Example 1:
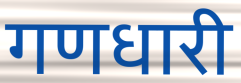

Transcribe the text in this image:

गणधारी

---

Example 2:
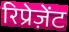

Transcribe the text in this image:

रिप्रेज़ेंट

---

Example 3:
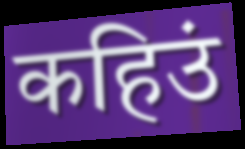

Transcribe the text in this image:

कहिउं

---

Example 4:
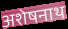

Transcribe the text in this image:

अशेषनाथ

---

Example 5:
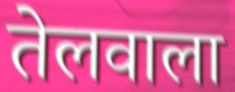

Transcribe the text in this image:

तेलवाला